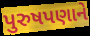
પુરુષપણાને